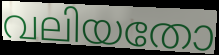
വലിയതോ